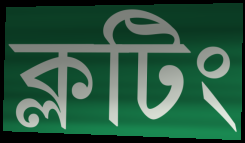
ক্লটিং